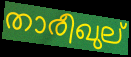
താരീഖുല്